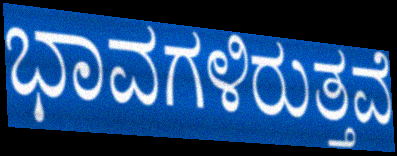
ಭಾವಗಳಿರುತ್ತವೆ